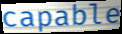
capable